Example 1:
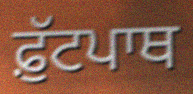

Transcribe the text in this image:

ਫ਼ੁੱਟਪਾਥ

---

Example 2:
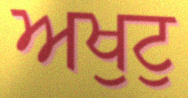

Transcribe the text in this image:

ਅਖੁਟੁ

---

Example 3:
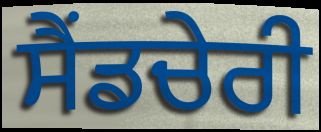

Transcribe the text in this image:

ਸੈਂਡਚੇਰੀ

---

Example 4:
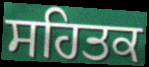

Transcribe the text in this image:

ਸਹਿਤਕ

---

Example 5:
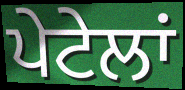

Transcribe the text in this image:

ਪੇਟੇਲਾਂ